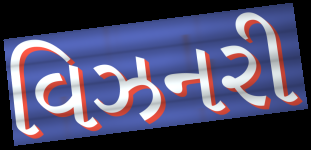
વિઝનરી